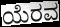
ಯೆರವ